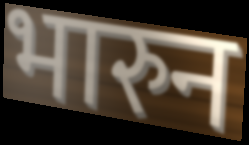
भारुन